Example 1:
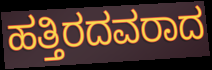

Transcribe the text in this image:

ಹತ್ತಿರದವರಾದ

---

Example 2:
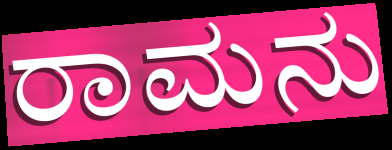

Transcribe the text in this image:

ರಾಮನು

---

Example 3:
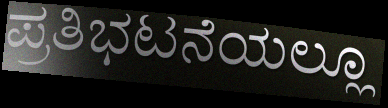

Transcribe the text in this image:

ಪ್ರತಿಭಟನೆಯಲ್ಲೂ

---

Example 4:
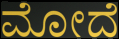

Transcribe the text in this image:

ಮೋದೆ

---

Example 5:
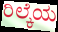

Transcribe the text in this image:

ರಿಲ್ಕೆಯ